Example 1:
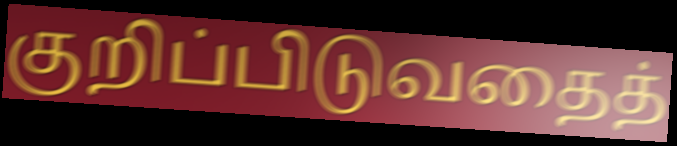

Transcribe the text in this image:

குறிப்பிடுவதைத்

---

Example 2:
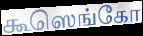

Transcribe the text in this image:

கூஸெங்கோ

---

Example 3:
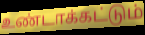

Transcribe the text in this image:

உண்டாக்கட்டும்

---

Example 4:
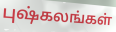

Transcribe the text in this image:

புஷ்கலங்கள்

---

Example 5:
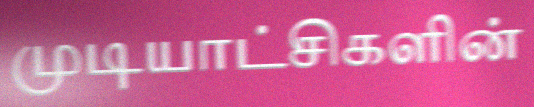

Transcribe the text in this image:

முடியாட்சிகளின்